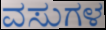
ವಸುಗಳ